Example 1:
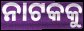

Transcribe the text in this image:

ନାଟକକୁ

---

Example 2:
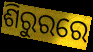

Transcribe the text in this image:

ଶିରୁରରେ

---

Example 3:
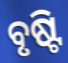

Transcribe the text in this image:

ବୃଷ୍ଟି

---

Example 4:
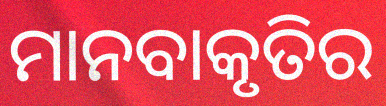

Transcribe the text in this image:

ମାନବାକୃତିର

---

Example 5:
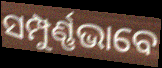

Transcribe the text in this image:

ସମ୍ପୁର୍ଣ୍ଣଭାବେ